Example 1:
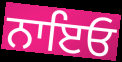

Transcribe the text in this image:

ਨਾਇਓ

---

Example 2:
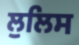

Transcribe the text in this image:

ਲੁਲਿਸ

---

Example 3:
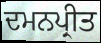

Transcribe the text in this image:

ਦਮਨਪ੍ਰੀਤ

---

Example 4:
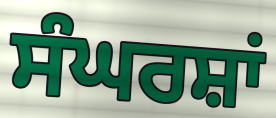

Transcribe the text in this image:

ਸੰਘਰਸ਼ਾਂ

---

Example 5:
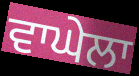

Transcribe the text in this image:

ਵਾਘੇਲਾ